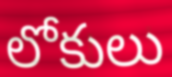
లోకులు